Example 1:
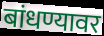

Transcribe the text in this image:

बांधण्यावर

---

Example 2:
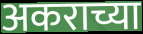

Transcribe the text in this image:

अकराच्या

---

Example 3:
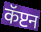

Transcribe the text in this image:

कॅप्टन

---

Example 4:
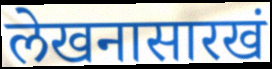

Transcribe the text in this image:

लेखनासारखं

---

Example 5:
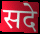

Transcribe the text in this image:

सदे